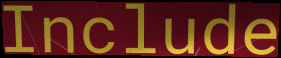
Include